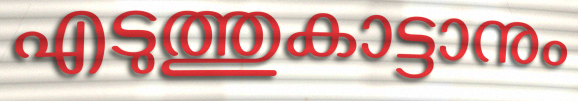
എടുത്തുകാട്ടാനും